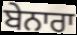
ਬੇਨਾਰਾ